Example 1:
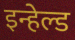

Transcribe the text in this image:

इन्हेल्ड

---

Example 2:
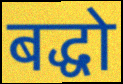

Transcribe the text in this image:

बद्धो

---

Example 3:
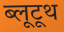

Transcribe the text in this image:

ब्‍लूटूथ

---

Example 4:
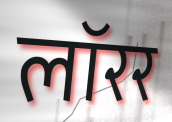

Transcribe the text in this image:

लॉरर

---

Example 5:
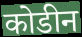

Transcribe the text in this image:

कोडीन